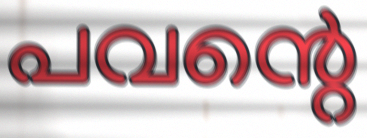
പവന്റെ